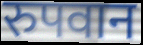
रुपवान